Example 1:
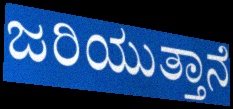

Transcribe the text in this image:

ಜರಿಯುತ್ತಾನೆ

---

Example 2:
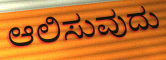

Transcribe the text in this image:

ಆಲಿಸುವುದು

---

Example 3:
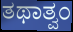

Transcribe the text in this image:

ತಥಾತ್ವಂ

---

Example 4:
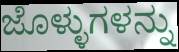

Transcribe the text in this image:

ಜೊಳ್ಳುಗಳನ್ನು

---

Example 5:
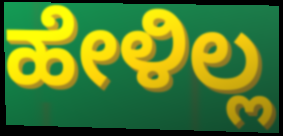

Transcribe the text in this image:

ಹೇಳಿಲ್ಲ